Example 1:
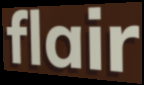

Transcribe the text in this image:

flair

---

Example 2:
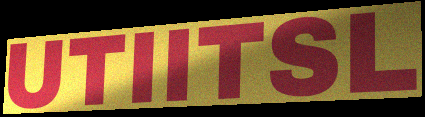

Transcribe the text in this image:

UTIITSL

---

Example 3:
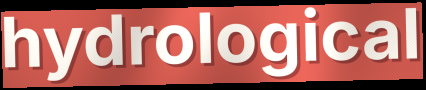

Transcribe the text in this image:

hydrological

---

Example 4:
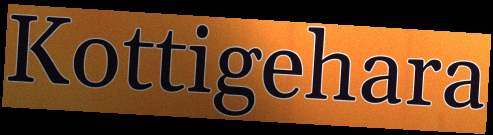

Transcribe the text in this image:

Kottigehara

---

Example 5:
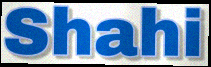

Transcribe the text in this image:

Shahi